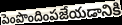
పెంపొందింపజేయడానికి